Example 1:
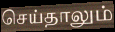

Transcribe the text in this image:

செய்தாலும்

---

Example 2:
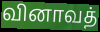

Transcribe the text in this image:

வினாவத்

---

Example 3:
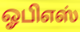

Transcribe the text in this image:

ஓபிஎஸ்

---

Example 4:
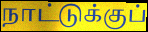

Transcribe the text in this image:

நாட்டுக்குப்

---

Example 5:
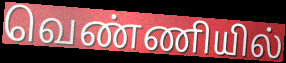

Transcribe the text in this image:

வெண்ணியில்